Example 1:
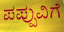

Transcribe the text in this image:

ಪಪ್ಪುವಿಗೆ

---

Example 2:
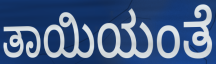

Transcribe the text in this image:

ತಾಯಿಯಂತೆ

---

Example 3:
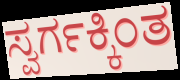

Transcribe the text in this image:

ಸ್ವರ್ಗಕ್ಕಿಂತ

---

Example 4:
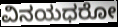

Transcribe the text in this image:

ವಿನಯಧರೋ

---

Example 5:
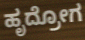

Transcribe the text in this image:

ಹೃದ್ರೋಗ